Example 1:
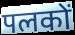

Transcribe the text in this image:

पलकों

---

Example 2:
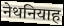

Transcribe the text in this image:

नेथनियाह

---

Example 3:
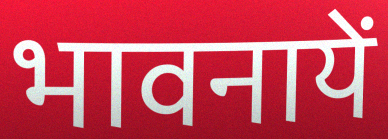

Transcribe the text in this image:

भावनायें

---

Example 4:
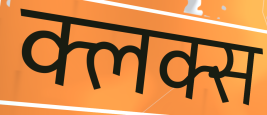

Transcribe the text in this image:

क्लक्स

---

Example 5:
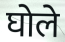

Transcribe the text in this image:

घोले